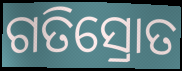
ଗତିସ୍ରୋତ